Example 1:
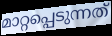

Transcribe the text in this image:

മാറ്റപ്പെടുന്നത്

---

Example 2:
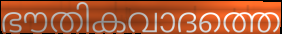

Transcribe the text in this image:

ഭൗതികവാദത്തെ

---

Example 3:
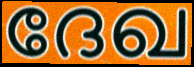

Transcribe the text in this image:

ദേഖ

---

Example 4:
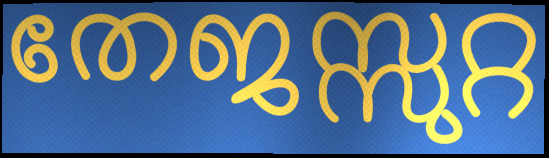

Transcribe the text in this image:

തേജസ്സുറ്റ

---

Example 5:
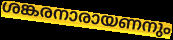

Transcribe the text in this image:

ശങ്കരനാരായണനും